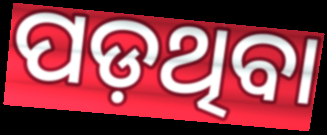
ପଡ଼ଥିବା